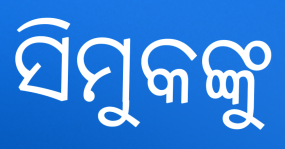
ସିମୁକଙ୍କୁ